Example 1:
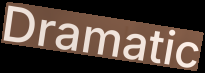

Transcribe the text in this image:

Dramatic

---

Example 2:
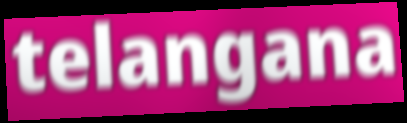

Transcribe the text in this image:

telangana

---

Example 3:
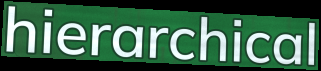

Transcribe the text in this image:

hierarchical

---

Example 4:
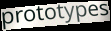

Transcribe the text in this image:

prototypes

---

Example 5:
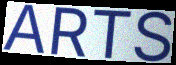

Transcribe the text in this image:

ARTS